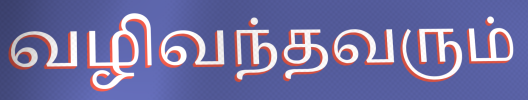
வழிவந்தவரும்